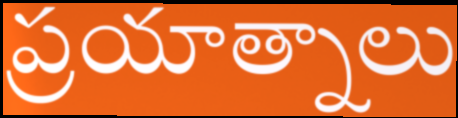
ప్రయాత్నాలు